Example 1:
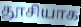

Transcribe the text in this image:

தூசியாக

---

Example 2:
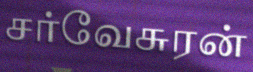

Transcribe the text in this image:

சர்வேசுரன்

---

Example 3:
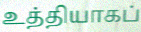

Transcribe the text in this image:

உத்தியாகப்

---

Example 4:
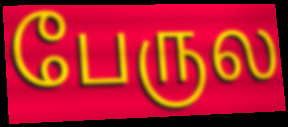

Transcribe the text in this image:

பேருல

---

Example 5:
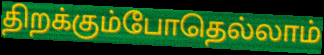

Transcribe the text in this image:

திறக்கும்போதெல்லாம்